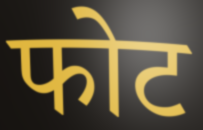
फोट